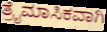
ತ್ರೈಮಾಸಿಕವಾಗಿ